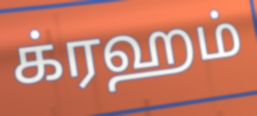
க்ரஹம்